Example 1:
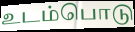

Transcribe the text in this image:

உடம்பொடு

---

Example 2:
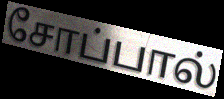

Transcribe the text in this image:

சோப்பால்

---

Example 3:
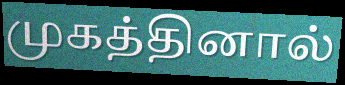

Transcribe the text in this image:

முகத்தினால்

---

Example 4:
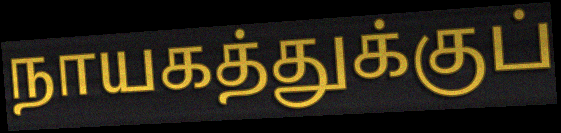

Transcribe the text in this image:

நாயகத்துக்குப்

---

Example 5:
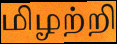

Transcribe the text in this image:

மிழற்றி